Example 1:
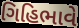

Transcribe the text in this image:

ગિહિભાવે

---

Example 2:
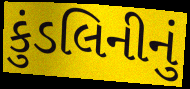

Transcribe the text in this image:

કુંડલિનીનું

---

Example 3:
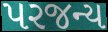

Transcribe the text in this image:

પરજન્ય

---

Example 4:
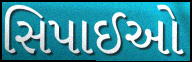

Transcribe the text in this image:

સિપાઈઓ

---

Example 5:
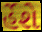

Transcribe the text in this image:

ર્હેશે